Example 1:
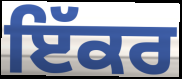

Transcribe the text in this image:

ਇੱਕਰ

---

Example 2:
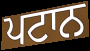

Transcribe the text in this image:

ਪਟਾਨ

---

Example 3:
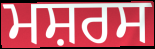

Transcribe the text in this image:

ਮਸ਼ਰਸ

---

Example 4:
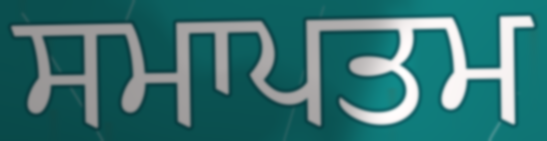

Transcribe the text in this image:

ਸਮਾਪਤਮ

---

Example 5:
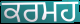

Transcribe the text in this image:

ਕਰਮਹ